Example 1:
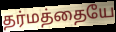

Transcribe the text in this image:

தர்மத்தையே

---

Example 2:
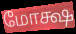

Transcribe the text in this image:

மோக்ஷ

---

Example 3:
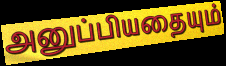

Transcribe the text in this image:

அனுப்பியதையும்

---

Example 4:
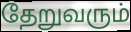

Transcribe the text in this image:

தேறுவரும்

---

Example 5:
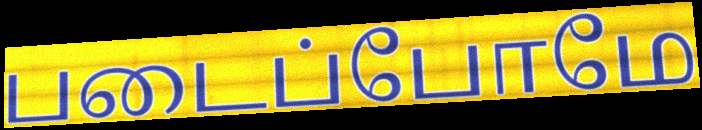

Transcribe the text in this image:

படைப்போமே